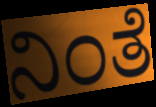
ನಿಂತೆ